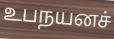
உபநயனச்